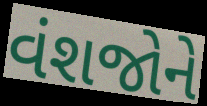
વંશજોને